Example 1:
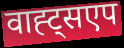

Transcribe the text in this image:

वाह्ट्सएप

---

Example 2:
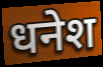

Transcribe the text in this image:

धनेश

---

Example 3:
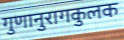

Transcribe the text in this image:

गुणानुरागकुलक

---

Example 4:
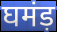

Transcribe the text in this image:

घमंड़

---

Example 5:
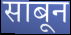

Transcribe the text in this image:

साबून